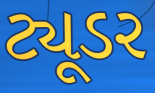
ટ્યૂડર